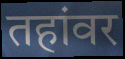
तहांवर